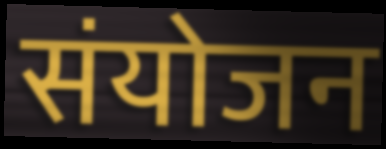
संयोजन